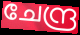
ചേന്ദ്ര